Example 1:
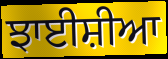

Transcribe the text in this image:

ਝਾਈਸ਼ੀਆ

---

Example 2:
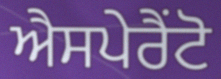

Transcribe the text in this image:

ਐਸਪੇਰੈਂਟੋ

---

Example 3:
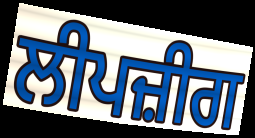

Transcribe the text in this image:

ਲੀਪਜ਼ੀਗ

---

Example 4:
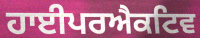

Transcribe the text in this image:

ਹਾਈਪਰਐਕਟਿਵ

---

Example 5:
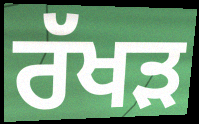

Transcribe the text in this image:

ਰੱਖੜ